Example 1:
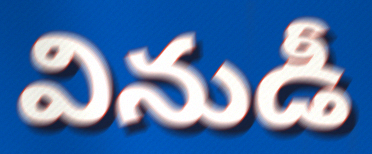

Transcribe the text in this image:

వినుడీ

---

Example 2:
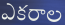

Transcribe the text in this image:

ఎకరాల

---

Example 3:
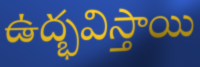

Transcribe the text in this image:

ఉద్భవిస్తాయి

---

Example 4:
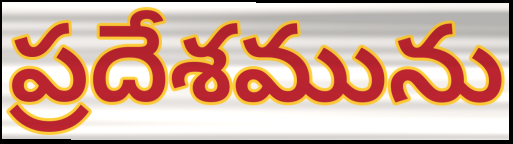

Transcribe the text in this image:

ప్రదేశమును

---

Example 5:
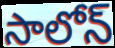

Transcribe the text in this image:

సాలోన్